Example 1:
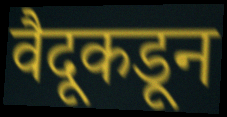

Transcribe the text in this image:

वैदूकडून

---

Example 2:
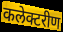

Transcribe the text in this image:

कलेक्टरीण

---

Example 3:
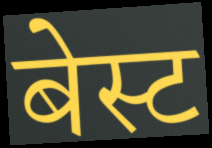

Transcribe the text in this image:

बेस्ट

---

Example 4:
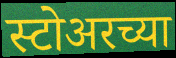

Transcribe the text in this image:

स्टोअरच्या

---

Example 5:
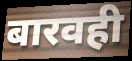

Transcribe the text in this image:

बारवही